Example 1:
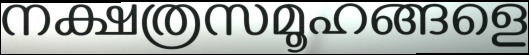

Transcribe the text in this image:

നക്ഷത്രസമൂഹങ്ങളെ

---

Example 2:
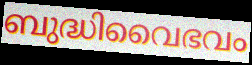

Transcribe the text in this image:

ബുദ്ധിവൈഭവം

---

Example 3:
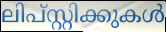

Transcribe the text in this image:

ലിപ്സ്റ്റിക്കുകൾ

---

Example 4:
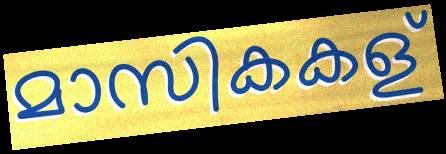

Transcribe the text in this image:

മാസികകള്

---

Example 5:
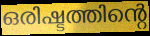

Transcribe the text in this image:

ഒരിഷ്ടത്തിന്റെ